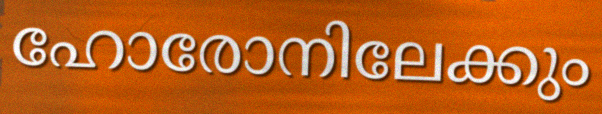
ഹോരോനിലേക്കും